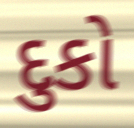
દુકો